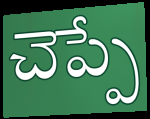
చెప్పే